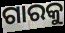
ଗାରକୁ